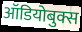
ऑडियोबुक्स